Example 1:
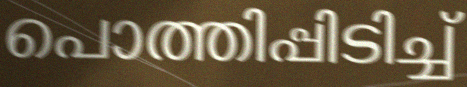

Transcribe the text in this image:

പൊത്തിപ്പിടിച്ച്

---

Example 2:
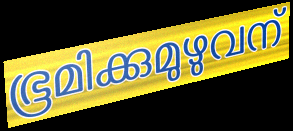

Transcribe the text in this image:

ഭൂമിക്കുമുഴുവന്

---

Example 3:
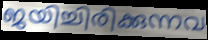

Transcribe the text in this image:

ജയിച്ചിരിക്കുന്നവ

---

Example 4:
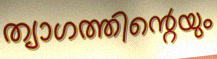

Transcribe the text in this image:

ത്യാഗത്തിന്റെയും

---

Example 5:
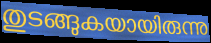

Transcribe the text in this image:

തുടങ്ങുകയായിരുന്നു